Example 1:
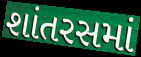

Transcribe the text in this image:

શાંતરસમાં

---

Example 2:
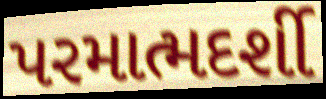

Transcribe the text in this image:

પરમાત્મદર્શી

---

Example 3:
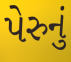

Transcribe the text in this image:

પેરુનું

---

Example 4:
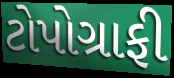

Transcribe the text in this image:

ટોપોગ્રાફી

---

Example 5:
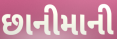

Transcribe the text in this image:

છાનીમાની